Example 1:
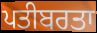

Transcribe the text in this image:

ਪਤੀਬਰਤਾ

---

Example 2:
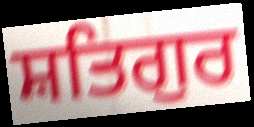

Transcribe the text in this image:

ਸ਼ਤਿਗੁਰ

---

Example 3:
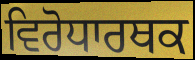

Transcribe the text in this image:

ਵਿਰੋਧਾਰਥਕ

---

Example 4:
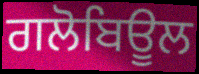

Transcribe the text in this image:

ਗਲੋਬਿਊਲ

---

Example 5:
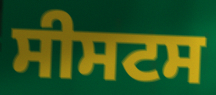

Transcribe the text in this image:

ਸੀਸਟਸ